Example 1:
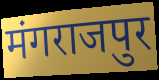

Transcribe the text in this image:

मंगराजपुर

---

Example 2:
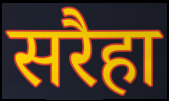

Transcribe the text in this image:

सरैहा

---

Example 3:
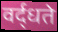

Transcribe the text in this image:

वर्द्धते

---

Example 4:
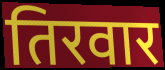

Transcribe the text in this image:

तिरवार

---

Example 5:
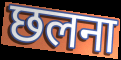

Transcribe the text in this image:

छलना